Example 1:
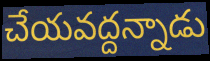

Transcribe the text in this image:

చేయవద్దన్నాడు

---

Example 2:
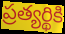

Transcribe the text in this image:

ప్రత్యర్థికి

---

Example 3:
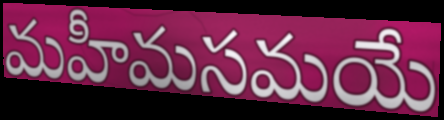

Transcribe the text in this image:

మహీమసమయే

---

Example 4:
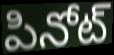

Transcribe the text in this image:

పినోట్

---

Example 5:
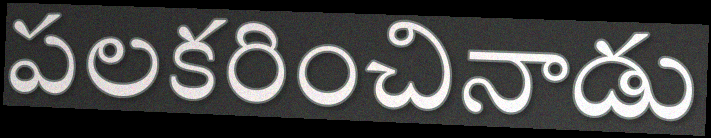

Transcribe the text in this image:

పలకరించినాడు